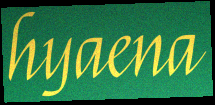
hyaena